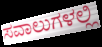
ಸವಾಲುಗಳಲ್ಲಿ